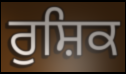
ਰੁਸ਼ਿਕ